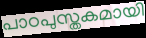
പാഠപുസ്തകമായി